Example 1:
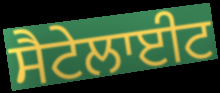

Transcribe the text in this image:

ਸੈਟੇਲਾਈਟ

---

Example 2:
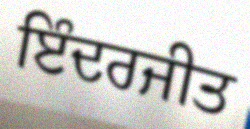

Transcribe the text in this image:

ਇੰਦਰਜੀਤ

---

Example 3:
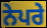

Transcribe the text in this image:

ਨੇਪਰੇ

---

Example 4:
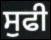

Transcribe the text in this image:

ਸੁਫੀ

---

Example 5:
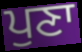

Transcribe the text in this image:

ਪੁਣਾ